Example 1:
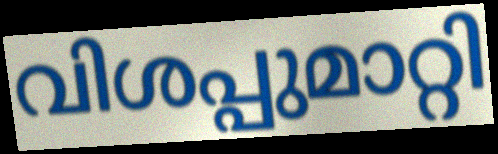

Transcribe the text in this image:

വിശപ്പുമാറ്റി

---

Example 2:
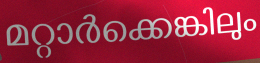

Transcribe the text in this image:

മറ്റാർക്കെങ്കിലും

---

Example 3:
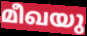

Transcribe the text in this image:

മീഖയു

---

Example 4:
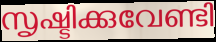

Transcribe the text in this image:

സൃഷ്ടിക്കുവേണ്ടി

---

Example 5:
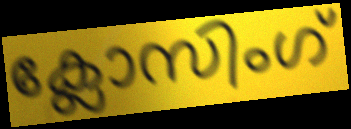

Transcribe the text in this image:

ക്ലോസിംഗ്